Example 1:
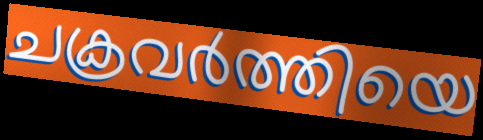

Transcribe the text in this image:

ചക്രവർത്തിയെ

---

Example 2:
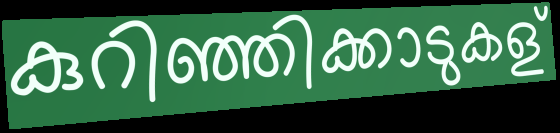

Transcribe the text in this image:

കുറിഞ്ഞിക്കാടുകള്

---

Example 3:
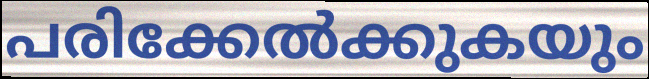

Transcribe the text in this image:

പരിക്കേൽക്കുകയും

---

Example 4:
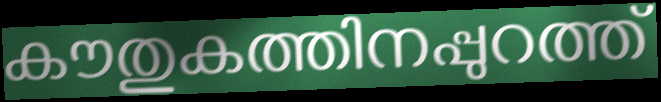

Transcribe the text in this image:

കൗതുകത്തിനപ്പുറത്ത്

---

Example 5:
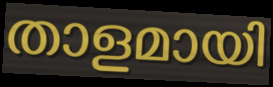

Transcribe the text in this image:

താളമായി